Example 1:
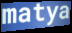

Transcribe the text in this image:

matya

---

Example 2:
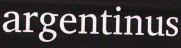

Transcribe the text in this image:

argentinus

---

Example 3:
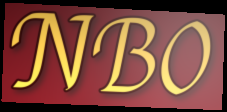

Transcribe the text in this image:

NBO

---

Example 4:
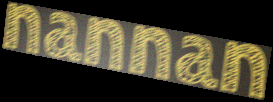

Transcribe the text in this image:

nannan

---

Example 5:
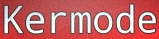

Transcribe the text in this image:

Kermode